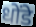
धोंडे